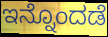
ಇನ್ನೊಂದಡೆ